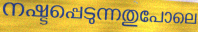
നഷ്ടപ്പെടുന്നതുപോലെ